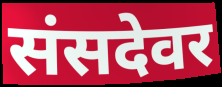
संसदेवर